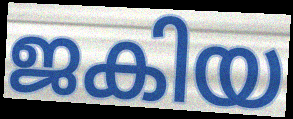
ജകിയ